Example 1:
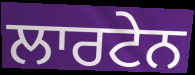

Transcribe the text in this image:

ਲਾਰਟੇਨ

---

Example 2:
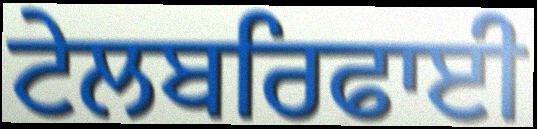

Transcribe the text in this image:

ਟੇਲਬਰਿਫਾਈ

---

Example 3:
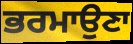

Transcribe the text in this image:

ਭਰਮਾਉਣਾ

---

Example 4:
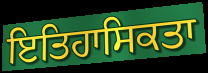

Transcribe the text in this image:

ਇਤਿਹਾਸਿਕਤਾ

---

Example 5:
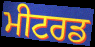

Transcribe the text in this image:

ਮੀਟਰਡ